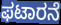
ಫಟಾರನೆ